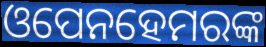
ଓପେନହେମରଙ୍କ